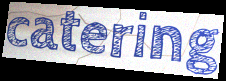
catering